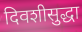
दिवशीसुद्धा